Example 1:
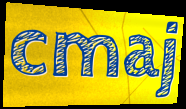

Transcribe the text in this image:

cmaj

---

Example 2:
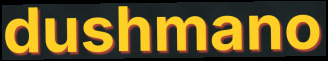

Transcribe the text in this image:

dushmano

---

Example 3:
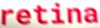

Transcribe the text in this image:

retina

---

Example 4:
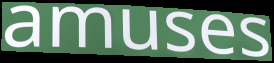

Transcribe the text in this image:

amuses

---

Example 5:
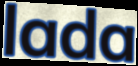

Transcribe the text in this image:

lada